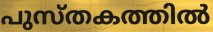
പുസ്തകത്തിൽ